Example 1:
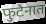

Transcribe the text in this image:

फुटेनात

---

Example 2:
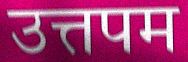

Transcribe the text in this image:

उत्तपम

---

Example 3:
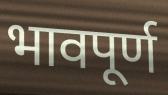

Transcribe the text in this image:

भावपूर्ण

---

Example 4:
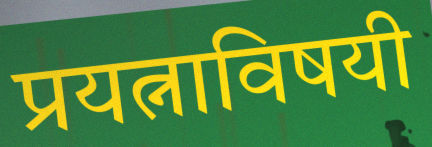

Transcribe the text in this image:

प्रयत्नाविषयी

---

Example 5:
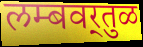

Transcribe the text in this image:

लम्बवर्तुळ